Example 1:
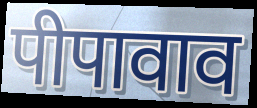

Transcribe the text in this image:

पीपावाव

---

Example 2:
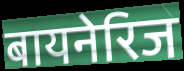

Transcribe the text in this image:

बायनेरिज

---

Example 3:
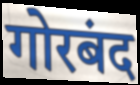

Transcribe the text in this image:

गोरबंद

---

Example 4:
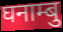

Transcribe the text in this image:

घनाम्बु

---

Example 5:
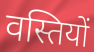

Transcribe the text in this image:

वस्तियों